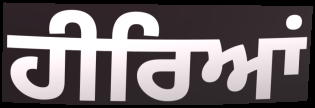
ਹੀਰਿਆਂ